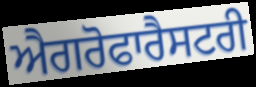
ਐਗਰੋਫਾਰੈਸਟਰੀ